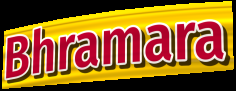
Bhramara